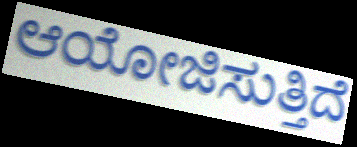
ಆಯೋಜಿಸುತ್ತಿದೆ